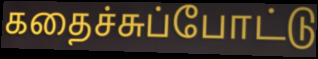
கதைச்சுப்போட்டு